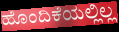
ಹೊಂದಿಕೆಯಲ್ಲಿಲ್ಲ